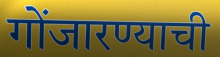
गोंजारण्याची